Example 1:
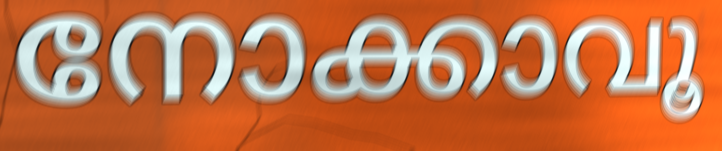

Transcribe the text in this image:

നോക്കാവൂ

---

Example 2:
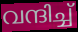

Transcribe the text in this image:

വന്ദിച്ച്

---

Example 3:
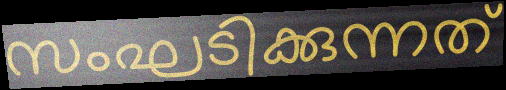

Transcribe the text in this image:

സംഘടിക്കുന്നത്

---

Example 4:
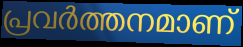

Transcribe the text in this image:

പ്രവർത്തനമാണ്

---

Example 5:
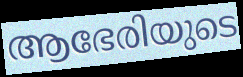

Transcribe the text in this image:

ആഭേരിയുടെ